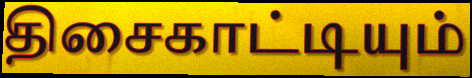
திசைகாட்டியும்